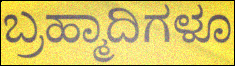
ಬ್ರಹ್ಮಾದಿಗಳೂ